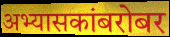
अभ्यासकांबरोबर